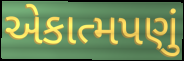
એકાત્મપણું